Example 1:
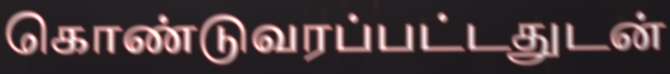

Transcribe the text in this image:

கொண்டுவரப்பட்டதுடன்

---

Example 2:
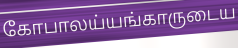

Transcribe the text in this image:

கோபாலய்யங்காருடைய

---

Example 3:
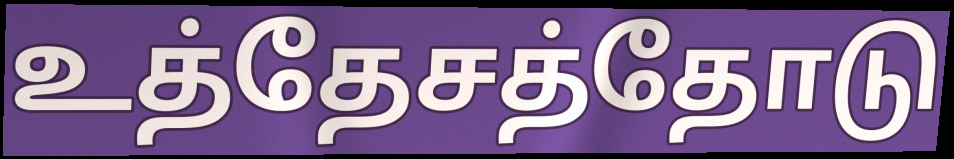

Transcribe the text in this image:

உத்தேசத்தோடு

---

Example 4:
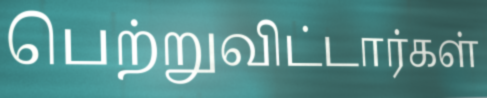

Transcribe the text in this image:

பெற்றுவிட்டார்கள்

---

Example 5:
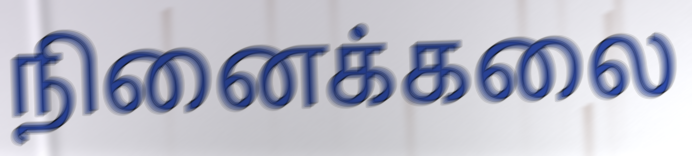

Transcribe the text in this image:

நினைக்கலை